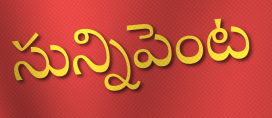
సున్నిపెంట